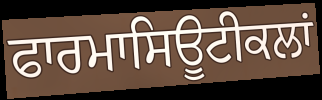
ਫਾਰਮਾਸਿਊਟੀਕਲਾਂ